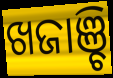
ଖଜାଞ୍ଚି